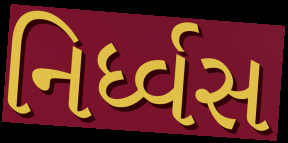
નિર્ધ્વસ